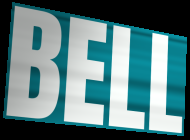
BELL